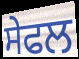
ਸੇਫਲ